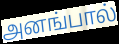
அனங்பால்